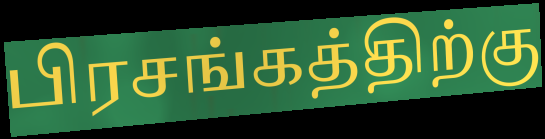
பிரசங்கத்திற்கு